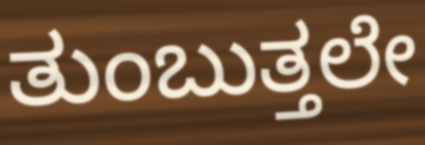
ತುಂಬುತ್ತಲೇ